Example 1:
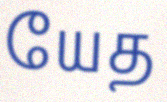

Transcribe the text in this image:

யேத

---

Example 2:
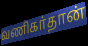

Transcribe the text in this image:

வணிகர்தான்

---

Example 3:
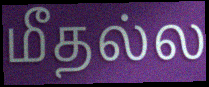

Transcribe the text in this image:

மீதல்ல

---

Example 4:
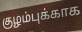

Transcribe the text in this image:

குழம்புக்காக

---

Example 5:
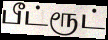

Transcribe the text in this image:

பீட்ரூட்